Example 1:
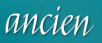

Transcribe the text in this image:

ancien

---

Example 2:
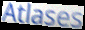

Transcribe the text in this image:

Atlases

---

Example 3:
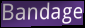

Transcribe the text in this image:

Bandage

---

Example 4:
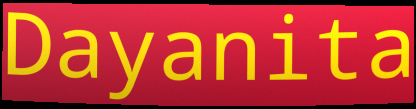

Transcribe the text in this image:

Dayanita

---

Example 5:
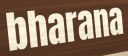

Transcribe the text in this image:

bharana